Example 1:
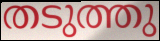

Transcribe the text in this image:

തടുത്തു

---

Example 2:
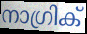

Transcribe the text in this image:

നാഗ്രിക്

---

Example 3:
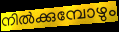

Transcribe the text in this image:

നിൽക്കുമ്പോഴും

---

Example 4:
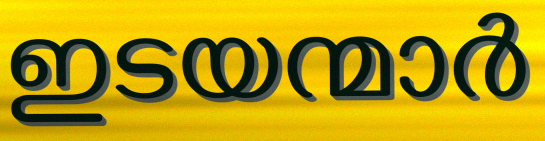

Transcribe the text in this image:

ഇടയന്മാർ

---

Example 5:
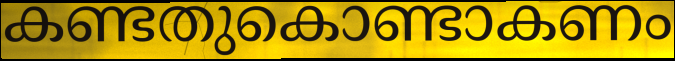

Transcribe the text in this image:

കണ്ടതുകൊണ്ടാകണം